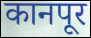
कानपूर